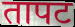
तापट